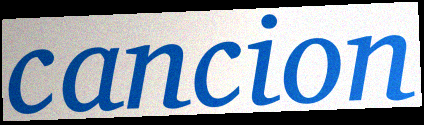
cancion